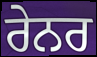
ਰੇਨਰ